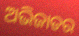
ଅଭିଜାତର